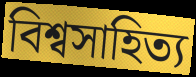
বিশ্বসাহিত্য